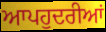
ਆਪਹੁਦਰੀਆਂ